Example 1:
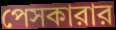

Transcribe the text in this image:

পেসকারার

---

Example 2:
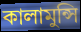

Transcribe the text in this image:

কালামুন্সি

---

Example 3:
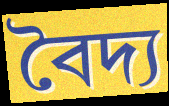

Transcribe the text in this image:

বৈদ্য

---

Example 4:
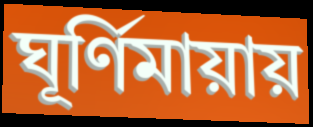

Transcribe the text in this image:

ঘূর্ণিমায়ায়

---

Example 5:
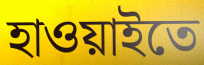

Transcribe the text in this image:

হাওয়াইতে